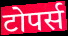
टोपर्स